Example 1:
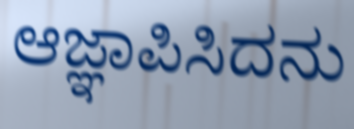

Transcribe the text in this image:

ಆಜ್ಞಾಪಿಸಿದನು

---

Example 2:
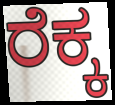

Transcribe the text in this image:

ರೆಕ್ಕ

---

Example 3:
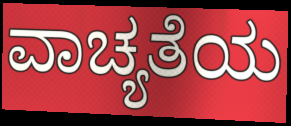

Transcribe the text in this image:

ವಾಚ್ಯತೆಯ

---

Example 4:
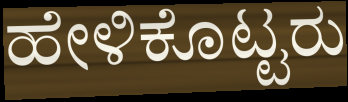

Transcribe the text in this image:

ಹೇಳಿಕೊಟ್ಟರು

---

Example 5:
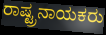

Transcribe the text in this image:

ರಾಷ್ಟ್ರನಾಯಕರು